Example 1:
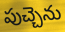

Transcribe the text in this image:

పుచ్చెను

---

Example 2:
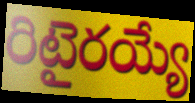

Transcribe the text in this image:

రిటైరయ్యే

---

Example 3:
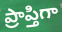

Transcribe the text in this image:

ప్రాప్తిగా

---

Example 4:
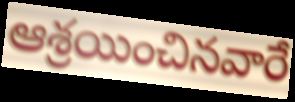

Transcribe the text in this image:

ఆశ్రయించినవారే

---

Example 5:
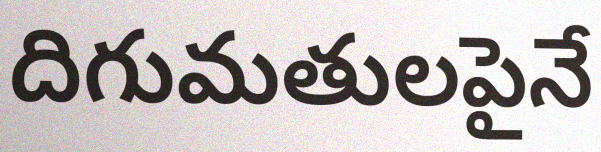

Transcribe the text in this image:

దిగుమతులపైనే